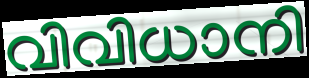
വിവിധാനി